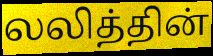
லலித்தின்